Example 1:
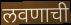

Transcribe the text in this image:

लवणाची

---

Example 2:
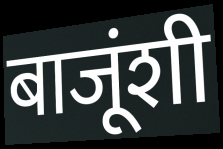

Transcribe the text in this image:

बाजूंशी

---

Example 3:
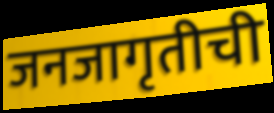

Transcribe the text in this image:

जनजागृतीची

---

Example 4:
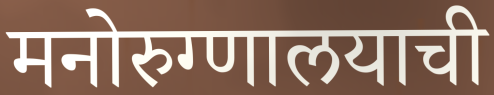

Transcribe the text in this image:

मनोरुग्णालयाची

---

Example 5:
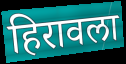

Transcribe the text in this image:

हिरावला